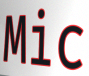
Mic